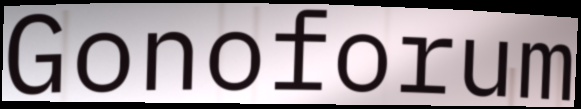
Gonoforum